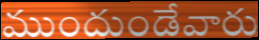
ముందుండేవారు